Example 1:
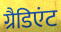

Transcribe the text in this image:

ग्रैडिएंट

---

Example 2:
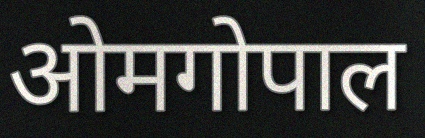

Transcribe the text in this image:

ओमगोपाल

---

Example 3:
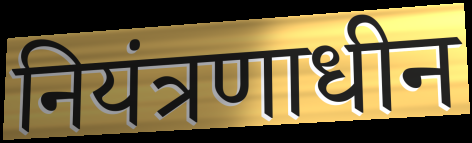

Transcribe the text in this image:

नियंत्रणाधीन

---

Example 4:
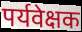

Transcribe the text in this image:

पर्यवेक्षक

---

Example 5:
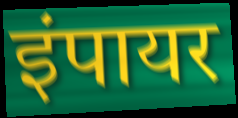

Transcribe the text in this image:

इंपायर